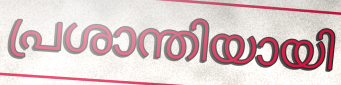
പ്രശാന്തിയായി